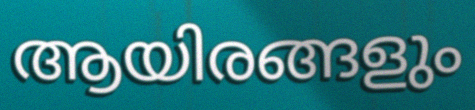
ആയിരങ്ങളും